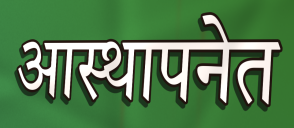
आस्थापनेत